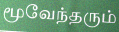
மூவேந்தரும்